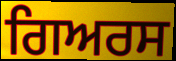
ਗਿਅਰਸ